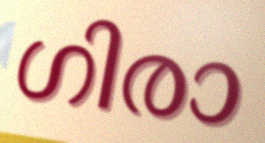
ഗിരാ